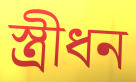
স্ত্রীধন